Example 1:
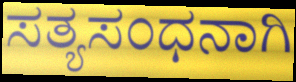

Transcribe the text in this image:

ಸತ್ಯಸಂಧನಾಗಿ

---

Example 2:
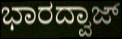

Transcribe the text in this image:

ಭಾರದ್ವಾಜ್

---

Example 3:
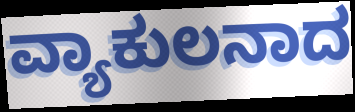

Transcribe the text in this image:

ವ್ಯಾಕುಲನಾದ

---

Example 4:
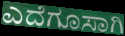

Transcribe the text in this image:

ಎದೆಗೂಸಾಗಿ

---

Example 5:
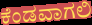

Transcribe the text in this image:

ಕೆಂಡವಾಗಲಿ